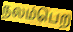
நலம்பெற